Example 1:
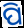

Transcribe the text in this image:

ପି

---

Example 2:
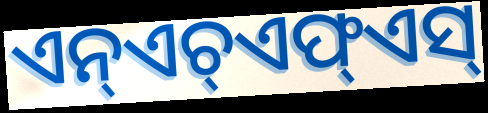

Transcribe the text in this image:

ଏନ୍ଏଚ୍ଏଫ୍ଏସ୍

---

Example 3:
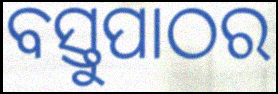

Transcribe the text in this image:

ବସ୍ତୁପାଠର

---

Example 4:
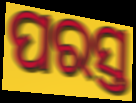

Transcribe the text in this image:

ପରସ୍ତ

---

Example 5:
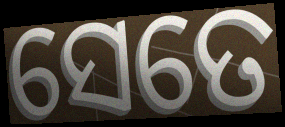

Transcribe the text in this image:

ସେତେ